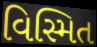
વિસ્મિત